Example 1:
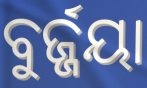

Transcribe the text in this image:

ବୁର୍ଜ୍ଜୟା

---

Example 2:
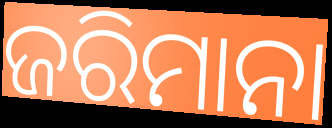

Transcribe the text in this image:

ଜରିମାନା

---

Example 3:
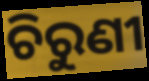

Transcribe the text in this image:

ଚିରୁଣୀ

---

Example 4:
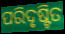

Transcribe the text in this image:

ପରିଦୃଷ୍ଟିତ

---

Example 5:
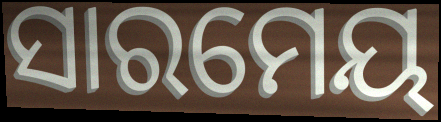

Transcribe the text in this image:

ସାରମେୟ